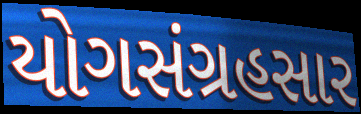
યોગસંગ્રહસાર